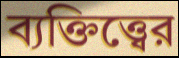
ব্যক্তিত্ত্বের